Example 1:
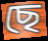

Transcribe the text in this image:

ছে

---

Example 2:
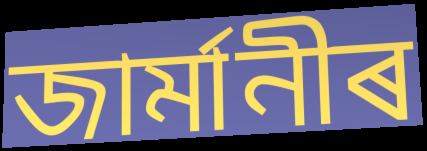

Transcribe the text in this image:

জাৰ্মানীৰ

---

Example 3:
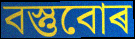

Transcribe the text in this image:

বস্তুবোৰ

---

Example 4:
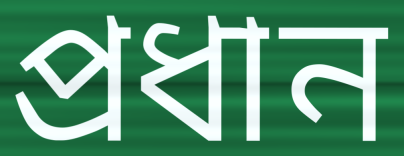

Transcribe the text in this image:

প্ৰধান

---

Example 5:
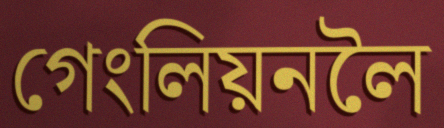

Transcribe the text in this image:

গেংলিয়নলৈ